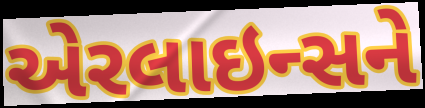
એરલાઇન્સને